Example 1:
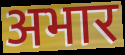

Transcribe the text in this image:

अभार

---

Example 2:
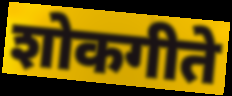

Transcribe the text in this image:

शोकगीते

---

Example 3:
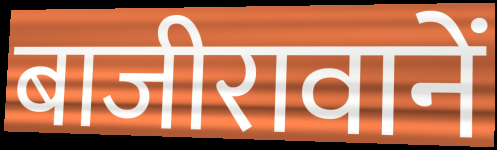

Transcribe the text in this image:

बाजीरावानें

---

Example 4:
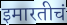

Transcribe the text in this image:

इमारतीचं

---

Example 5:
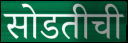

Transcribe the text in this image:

सोडतीची